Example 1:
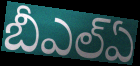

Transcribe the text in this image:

బీఎల్ఏ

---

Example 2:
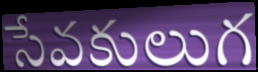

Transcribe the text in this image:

సేవకులుగ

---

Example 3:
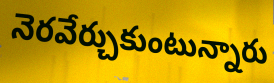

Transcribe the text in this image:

నెరవేర్చుకుంటున్నారు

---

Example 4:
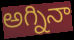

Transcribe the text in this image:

అగ్నినా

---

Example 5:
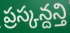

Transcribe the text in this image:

ప్రస్కన్దన్తి